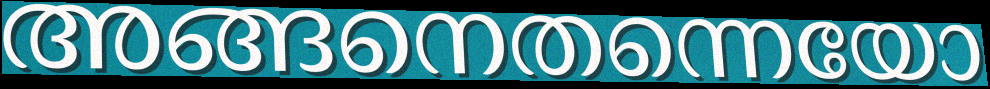
അങ്ങനെതന്നെയോ